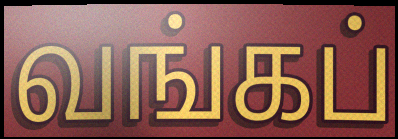
வங்கப்